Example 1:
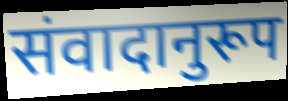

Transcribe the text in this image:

संवादानुरूप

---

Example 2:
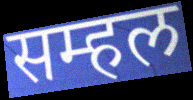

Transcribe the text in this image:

सम्हल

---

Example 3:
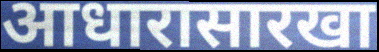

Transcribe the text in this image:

आधारासारखा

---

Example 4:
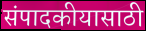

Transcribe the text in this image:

संपादकीयासाठी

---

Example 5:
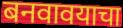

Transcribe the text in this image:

बनवावयाचा